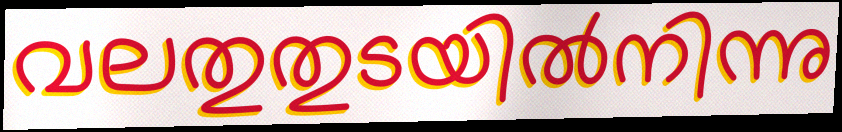
വലതുതുടയിൽനിന്നു